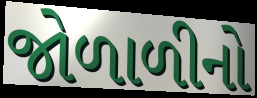
જોળાળીનો